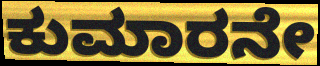
ಕುಮಾರನೇ